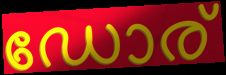
ഡോര്